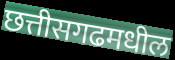
छत्तीसगढमधील